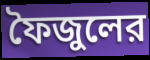
ফৈজুলের